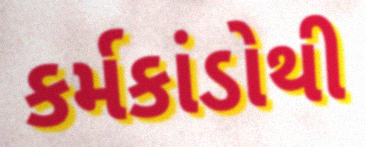
કર્મકાંડોથી